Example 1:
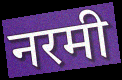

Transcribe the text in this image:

नरमी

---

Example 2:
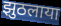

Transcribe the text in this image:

झुठलाया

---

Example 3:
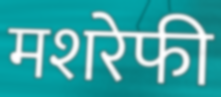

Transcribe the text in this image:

मशरेफी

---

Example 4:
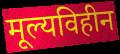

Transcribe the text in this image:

मूल्यविहीन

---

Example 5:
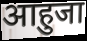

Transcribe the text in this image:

आहुजा